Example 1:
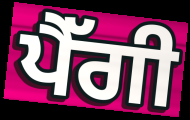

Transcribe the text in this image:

ਪੈੱਗੀ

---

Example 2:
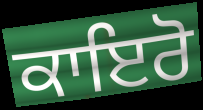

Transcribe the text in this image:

ਕਾਇਰੋ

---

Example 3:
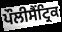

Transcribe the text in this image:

ਪੌਲੀਸੈਂਟ੍ਰਿਕ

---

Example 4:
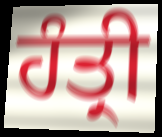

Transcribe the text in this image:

ਹੰਤ੍ਰੀ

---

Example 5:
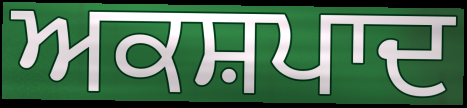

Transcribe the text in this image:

ਅਕਸ਼ਪਾਦ